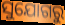
ସୁଯୋଗରୁ